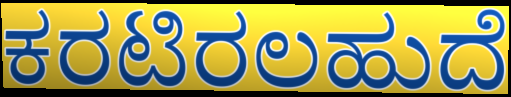
ಕರಟಿರಲಹುದೆ